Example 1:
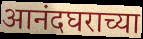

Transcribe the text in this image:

आनंदघराच्या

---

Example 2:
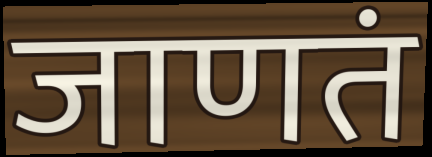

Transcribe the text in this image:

जाणतं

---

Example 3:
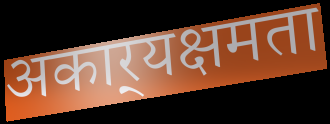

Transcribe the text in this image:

अकार्यक्षमता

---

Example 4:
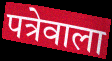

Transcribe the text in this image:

पत्रेवाला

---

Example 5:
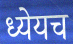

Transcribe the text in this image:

ध्येयच